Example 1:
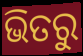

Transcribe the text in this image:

ଭିତରୁ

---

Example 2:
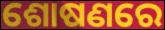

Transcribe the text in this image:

ଶୋଷଣରେ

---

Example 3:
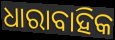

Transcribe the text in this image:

ଧାରାବାହିକ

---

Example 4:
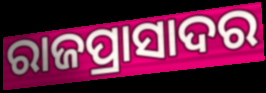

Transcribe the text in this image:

ରାଜପ୍ରାସାଦର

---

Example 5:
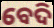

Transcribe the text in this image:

ବେଦି